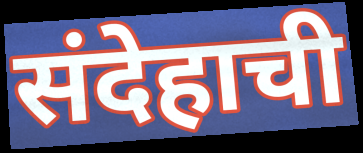
संदेहाची